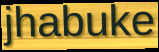
jhabuke